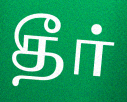
தீர்